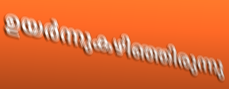
ഉയർന്നുകഴിഞ്ഞിരുന്നു